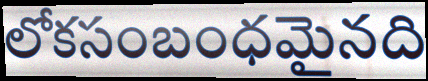
లోకసంబంధమైనది